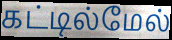
கட்டில்மேல்